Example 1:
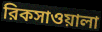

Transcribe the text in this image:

রিকসাওয়ালা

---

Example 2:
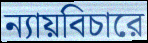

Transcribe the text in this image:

ন্যায়বিচারে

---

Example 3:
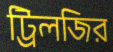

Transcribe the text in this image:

ট্রিলজির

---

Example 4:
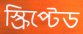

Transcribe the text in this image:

স্ক্রিপ্টেড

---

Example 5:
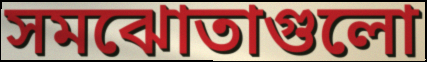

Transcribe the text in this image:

সমঝোতাগুলো